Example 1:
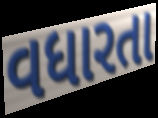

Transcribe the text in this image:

વધારતા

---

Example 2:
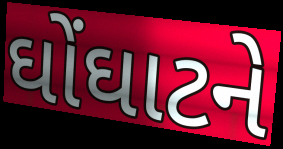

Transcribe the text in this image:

ઘોંઘાટને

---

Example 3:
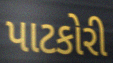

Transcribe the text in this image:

પાટકોરી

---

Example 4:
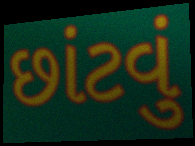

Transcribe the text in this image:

છાંટવું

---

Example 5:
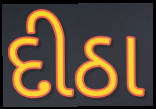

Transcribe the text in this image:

દીઠા